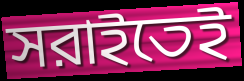
সরাইতেই